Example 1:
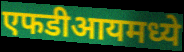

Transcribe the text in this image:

एफडीआयमध्ये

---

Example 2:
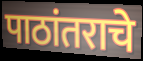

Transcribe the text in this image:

पाठांतराचे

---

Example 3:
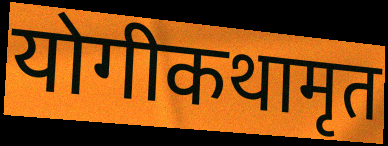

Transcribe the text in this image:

योगीकथामृत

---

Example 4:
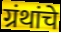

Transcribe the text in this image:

ग्रंथांचे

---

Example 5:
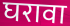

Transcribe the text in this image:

घरावा